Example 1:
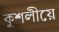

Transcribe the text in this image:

কুশলীয়ে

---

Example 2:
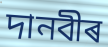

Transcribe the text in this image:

দানবীৰ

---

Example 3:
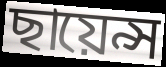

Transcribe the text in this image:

ছায়েন্স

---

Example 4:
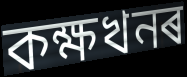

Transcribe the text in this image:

কক্ষখনৰ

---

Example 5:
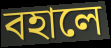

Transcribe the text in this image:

বহালে